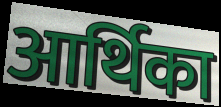
आर्थिका